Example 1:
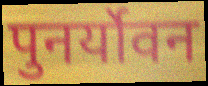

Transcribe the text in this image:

पुनर्योवन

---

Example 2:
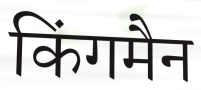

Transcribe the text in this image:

किंगमैन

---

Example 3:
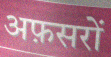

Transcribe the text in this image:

अफ़सरों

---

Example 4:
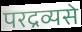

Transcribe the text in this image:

परद्रव्यसे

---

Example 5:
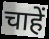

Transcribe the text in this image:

चाहें